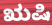
ಋಷಿ